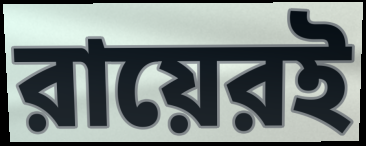
রায়েরই